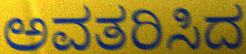
ಅವತರಿಸಿದ